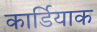
कार्डियाक